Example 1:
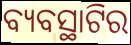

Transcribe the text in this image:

ବ୍ୟବସ୍ଥାଟିର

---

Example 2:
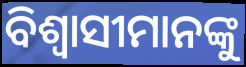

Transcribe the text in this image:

ବିଶ୍ୱାସୀମାନଙ୍କୁ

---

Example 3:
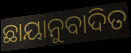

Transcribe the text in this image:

ଛାୟାନୁବାଦିତ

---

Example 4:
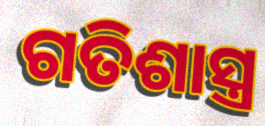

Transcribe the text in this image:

ଗତିଶାସ୍ତ୍ର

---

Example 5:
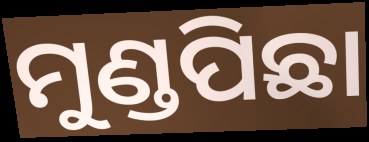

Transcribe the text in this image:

ମୁଣ୍ଡପିଛା